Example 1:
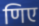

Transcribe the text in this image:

णिए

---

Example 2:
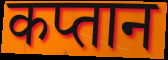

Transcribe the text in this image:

कप्तान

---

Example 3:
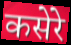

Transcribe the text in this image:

कसेरे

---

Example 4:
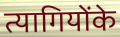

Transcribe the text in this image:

त्यागियोंके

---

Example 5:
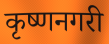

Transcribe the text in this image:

कृष्णनगरी